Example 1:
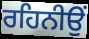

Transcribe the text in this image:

ਰਹਿਨੀਉਂ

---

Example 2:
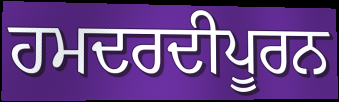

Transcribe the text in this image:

ਹਮਦਰਦੀਪੂਰਨ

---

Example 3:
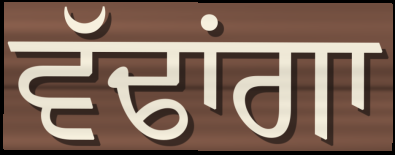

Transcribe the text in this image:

ਵੱਢਾਂਗਾ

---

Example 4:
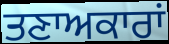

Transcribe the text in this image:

ਤਣਾਅਕਾਰਾਂ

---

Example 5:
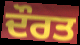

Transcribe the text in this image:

ਦੌਰਤ